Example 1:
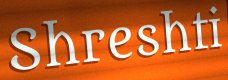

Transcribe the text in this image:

Shreshti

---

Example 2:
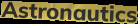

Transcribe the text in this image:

Astronautics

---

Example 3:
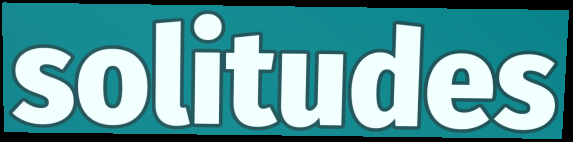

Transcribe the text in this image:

solitudes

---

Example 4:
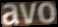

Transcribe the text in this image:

avo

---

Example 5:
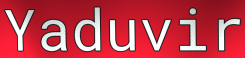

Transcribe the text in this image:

Yaduvir